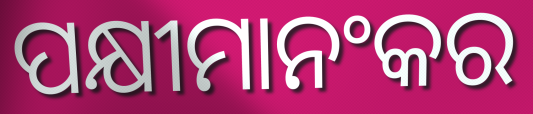
ପକ୍ଷୀମାନଂକର